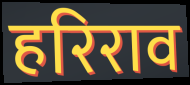
हरिराव